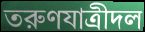
তরুণযাত্রীদল